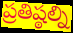
ప్రతిష్ఠల్ని